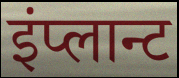
इंप्लान्ट